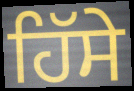
ਹਿੱਸੇ